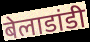
बेलाडांडी